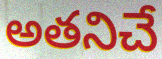
అతనిచే